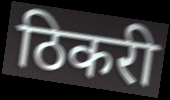
ठिकरी